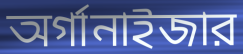
অর্গানাইজার